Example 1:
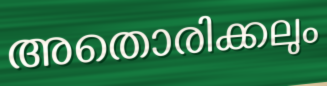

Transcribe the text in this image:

അതൊരിക്കലും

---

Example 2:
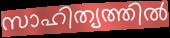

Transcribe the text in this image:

സാഹിത്യത്തിൽ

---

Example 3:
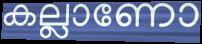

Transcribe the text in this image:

കല്ലാണോ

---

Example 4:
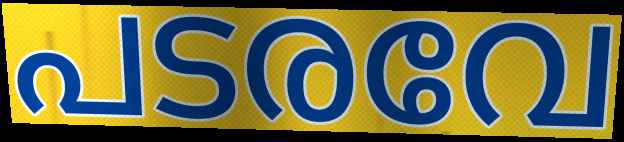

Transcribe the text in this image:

പടരവേ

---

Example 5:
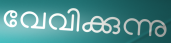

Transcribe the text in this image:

വേവിക്കുന്നു